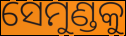
ସେମୁଣ୍ଡକୁ